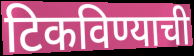
टिकविण्याची